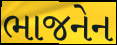
ભાજનેન